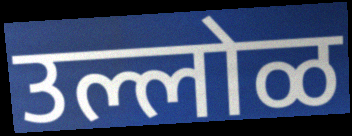
उल्लोळ